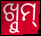
ଖ୍ନୁମ୍